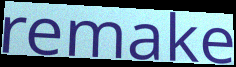
remake